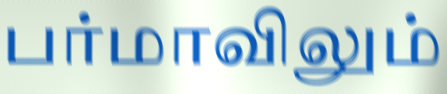
பர்மாவிலும்